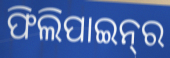
ଫିଲିପାଇନ୍‌ର